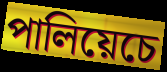
পালিয়েচে